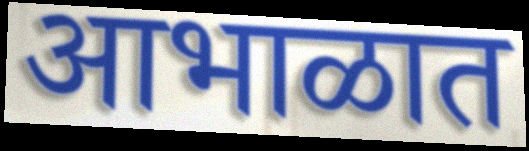
आभाळात